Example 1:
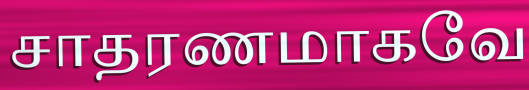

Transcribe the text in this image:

சாதரணமாகவே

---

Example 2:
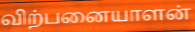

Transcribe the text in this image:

விற்பனையாளன்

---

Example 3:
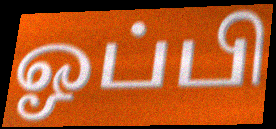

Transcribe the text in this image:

ஓப்பி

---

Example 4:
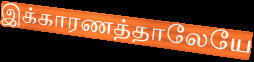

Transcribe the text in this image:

இக்காரணத்தாலேயே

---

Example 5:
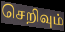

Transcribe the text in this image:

செறிவும்